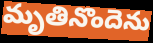
మృతినొందెను